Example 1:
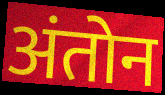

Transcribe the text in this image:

अंतोन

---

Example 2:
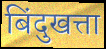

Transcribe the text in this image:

बिंदुखत्ता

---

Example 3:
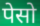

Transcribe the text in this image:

पेसो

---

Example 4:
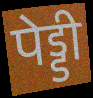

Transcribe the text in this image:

पेड्डी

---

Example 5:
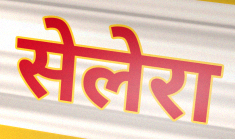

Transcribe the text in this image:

सेलेरा